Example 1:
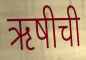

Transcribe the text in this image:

ऋषीची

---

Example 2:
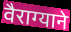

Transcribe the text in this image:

वैराग्याने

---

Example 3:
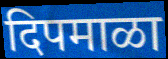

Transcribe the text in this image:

दिपमाळा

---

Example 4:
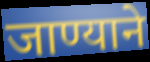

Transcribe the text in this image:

जाण्याने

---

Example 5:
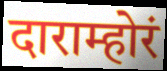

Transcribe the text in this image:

दाराम्होरं